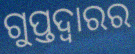
ଗୁପ୍ତଦ୍ୱାରର